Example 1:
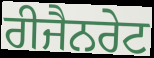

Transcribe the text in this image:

ਰੀਜੈਨਰੇਟ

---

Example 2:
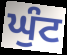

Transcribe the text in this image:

ਘੁੰਟ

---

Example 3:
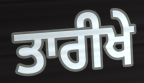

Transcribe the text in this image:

ਤਾਰੀਖੇ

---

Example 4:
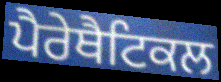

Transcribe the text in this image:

ਪੈਰੇਥੈਟਿਕਲ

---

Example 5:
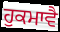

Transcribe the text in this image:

ਹੁਕਮਾਵੈ